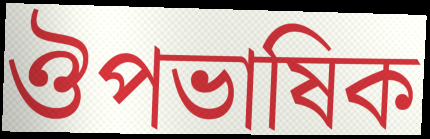
ঔপভাষিক